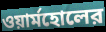
ওয়ার্মহোলের